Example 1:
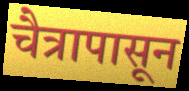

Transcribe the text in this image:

चैत्रापासून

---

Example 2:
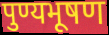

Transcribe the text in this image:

पुण्यभूषण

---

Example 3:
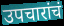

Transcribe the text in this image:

उपचारांचं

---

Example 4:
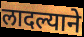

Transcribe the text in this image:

लादल्याने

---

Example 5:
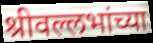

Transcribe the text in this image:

श्रीवल्लभांच्या